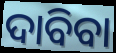
ଦାବିବା